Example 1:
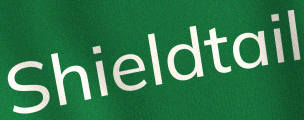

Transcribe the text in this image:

Shieldtail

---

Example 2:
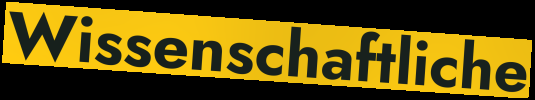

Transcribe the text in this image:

Wissenschaftliche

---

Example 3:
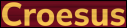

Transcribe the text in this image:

Croesus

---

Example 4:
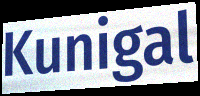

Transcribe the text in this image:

Kunigal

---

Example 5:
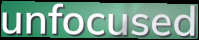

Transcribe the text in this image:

unfocused